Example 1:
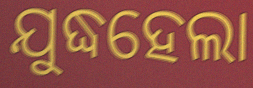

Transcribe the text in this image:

ଯୁଦ୍ଧହେଲା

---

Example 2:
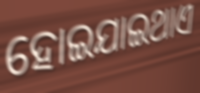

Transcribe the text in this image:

ହୋଇଯାଇଥାଏ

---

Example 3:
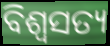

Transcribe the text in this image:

ବିଶ୍ୱସତ୍ୟ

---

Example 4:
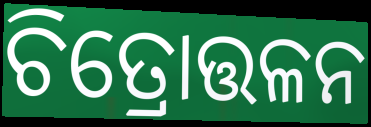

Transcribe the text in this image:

ଚିତ୍ରୋତ୍ତଳନ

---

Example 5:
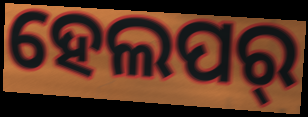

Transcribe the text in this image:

ହେଲପର୍